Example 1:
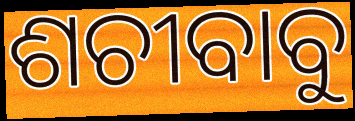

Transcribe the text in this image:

ଶଚୀବାବୁ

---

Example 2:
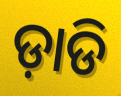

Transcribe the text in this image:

ଡ଼ାଡି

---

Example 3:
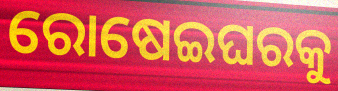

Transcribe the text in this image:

ରୋଷେଇଘରକୁ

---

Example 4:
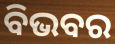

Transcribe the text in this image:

ବିଭବର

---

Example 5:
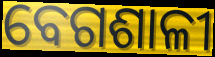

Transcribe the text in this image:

ବେଗଶାଳୀ